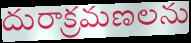
దురాక్రమణలను